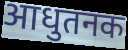
आधुतनक